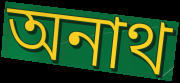
অনাথ